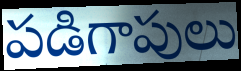
పడిగాపులు